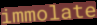
immolate